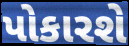
પોકારશે